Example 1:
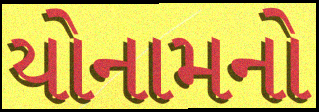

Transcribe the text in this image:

યોનામનો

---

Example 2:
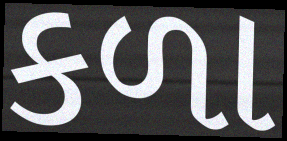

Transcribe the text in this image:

કળા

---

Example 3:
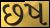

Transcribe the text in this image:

છષ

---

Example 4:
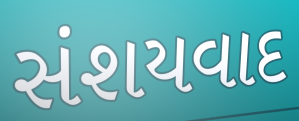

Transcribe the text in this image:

સંશયવાદ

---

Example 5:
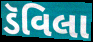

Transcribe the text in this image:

ડૅવિલા